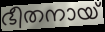
ഭീതനായ്